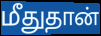
மீதுதான்